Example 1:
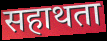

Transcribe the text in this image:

सहाथता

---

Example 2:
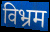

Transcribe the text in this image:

विभ्रम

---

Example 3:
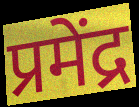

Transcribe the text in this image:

प्रमेंद्र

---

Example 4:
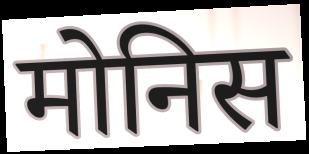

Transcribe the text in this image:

मोनिस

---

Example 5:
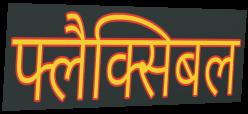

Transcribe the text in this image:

फ्लैक्सिबल